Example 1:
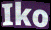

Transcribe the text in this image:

Iko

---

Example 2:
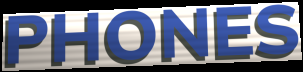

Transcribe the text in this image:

PHONES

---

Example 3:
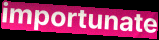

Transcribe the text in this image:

importunate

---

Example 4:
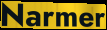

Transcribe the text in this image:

Narmer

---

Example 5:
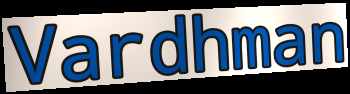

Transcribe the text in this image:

Vardhman